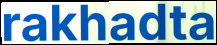
rakhadta